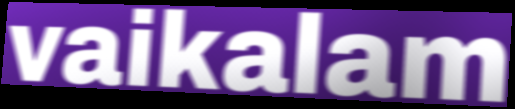
vaikalam